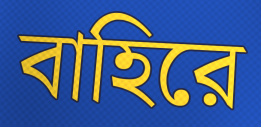
বাহিরে